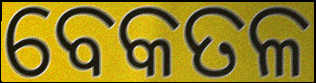
ବେକତଳ